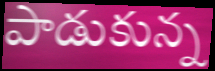
పాడుకున్న